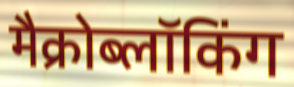
मैक्रोब्लॉकिंग